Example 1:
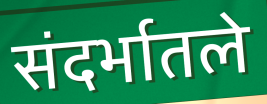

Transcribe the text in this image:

संदर्भातले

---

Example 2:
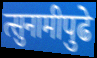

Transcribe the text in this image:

त्सुनामीपुढे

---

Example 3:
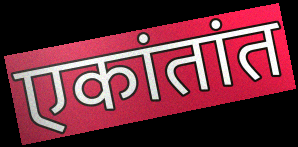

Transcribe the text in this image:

एकांतांत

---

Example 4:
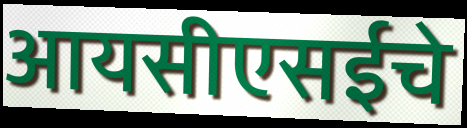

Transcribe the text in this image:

आयसीएसईचे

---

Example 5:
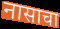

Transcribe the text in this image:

नासाचा